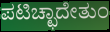
ಪಟಿಚ್ಛಾದೇತುಂ